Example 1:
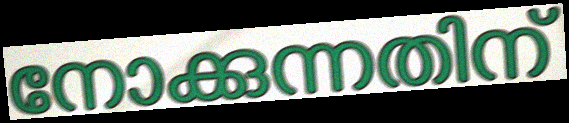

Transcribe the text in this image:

നോക്കുന്നതിന്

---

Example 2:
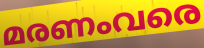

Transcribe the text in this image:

മരണംവരെ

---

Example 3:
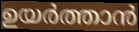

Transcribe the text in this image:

ഉയർത്താൻ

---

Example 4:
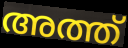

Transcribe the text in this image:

അത്ത്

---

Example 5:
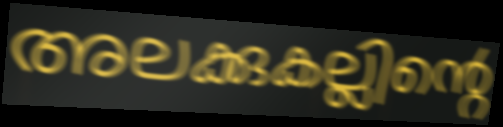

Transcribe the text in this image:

അലക്കുകല്ലിന്റെ